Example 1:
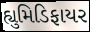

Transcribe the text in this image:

હ્યુમિડિફાયર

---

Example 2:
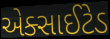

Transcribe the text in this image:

એક્સાઈટેડ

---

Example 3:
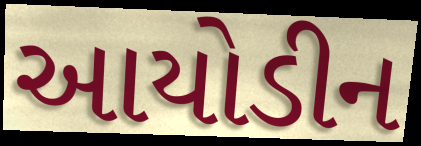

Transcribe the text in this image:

આયોડીન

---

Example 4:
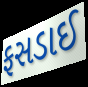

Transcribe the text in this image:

ફસડાઈ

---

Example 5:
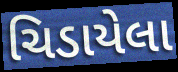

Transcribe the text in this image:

ચિડાયેલા